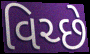
વિચ્છે